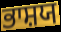
ਭਾਸ਼ਯ